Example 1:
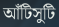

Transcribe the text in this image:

আঁটিসুটি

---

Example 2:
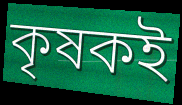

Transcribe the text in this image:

কৃষকই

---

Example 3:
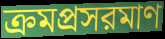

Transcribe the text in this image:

ক্রমপ্রসরমাণ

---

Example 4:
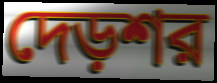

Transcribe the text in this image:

দেড়শর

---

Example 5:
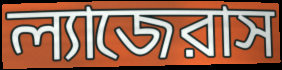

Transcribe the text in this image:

ল্যাজেরাস